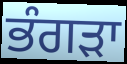
ਭੰਗੜਾ